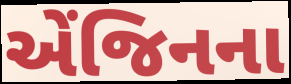
એંજિનના